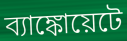
ব্যাঙ্কোয়েটে